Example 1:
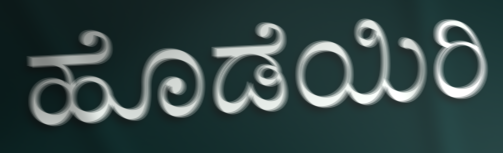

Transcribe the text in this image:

ಹೊಡೆಯಿರಿ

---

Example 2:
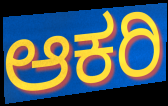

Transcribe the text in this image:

ಆಕರಿ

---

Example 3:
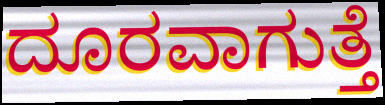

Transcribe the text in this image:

ದೂರವಾಗುತ್ತೆ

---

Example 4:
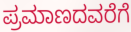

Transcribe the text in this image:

ಪ್ರಮಾಣದವರೆಗೆ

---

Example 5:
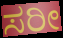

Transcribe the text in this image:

ಸರೀ